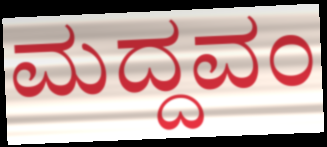
ಮದ್ದವಂ